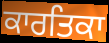
ਕਾਰਤਿਕਾ